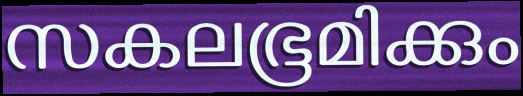
സകലഭൂമിക്കും